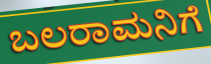
ಬಲರಾಮನಿಗೆ